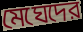
মেঘেদের